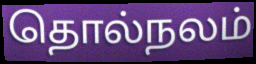
தொல்நலம்